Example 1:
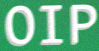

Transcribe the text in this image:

OIP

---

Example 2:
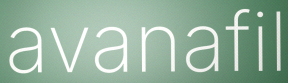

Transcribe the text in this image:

avanafil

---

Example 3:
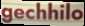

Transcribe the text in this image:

gechhilo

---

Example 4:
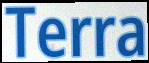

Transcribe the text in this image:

Terra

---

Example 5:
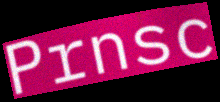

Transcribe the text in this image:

Prnsc